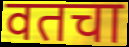
वतचा